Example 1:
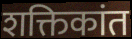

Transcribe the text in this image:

शक्तिकांत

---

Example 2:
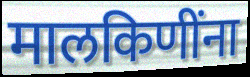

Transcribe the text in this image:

मालकिणींना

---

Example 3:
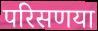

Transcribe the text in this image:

परिसणया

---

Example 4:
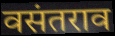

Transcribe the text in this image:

वसंतराव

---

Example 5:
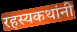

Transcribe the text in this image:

रहस्यकथांनी